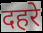
दहरे